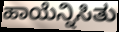
ಹಾಯೆನ್ನಿಸಿತು